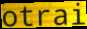
otrai